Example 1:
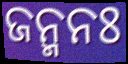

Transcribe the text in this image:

ଜନ୍ମନଃ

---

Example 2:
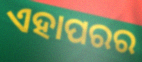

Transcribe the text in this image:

ଏହାପରର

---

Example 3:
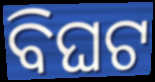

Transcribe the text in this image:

ବିଘଟ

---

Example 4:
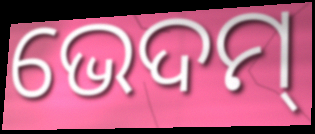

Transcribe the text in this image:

ଭେଦମ୍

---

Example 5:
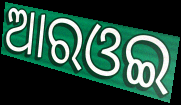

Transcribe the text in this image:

ଆରଓଇ